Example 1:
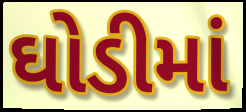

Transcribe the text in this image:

ઘોડીમાં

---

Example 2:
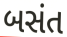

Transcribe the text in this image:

બસંત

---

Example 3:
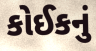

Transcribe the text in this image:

કોઈકનું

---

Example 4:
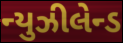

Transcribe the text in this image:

ન્યુઝીલેન્ડ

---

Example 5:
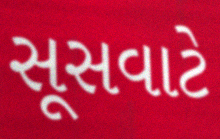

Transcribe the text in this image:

સૂસવાટે